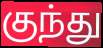
குந்து